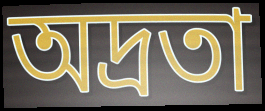
অদ্রতা